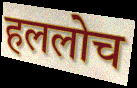
हललोच